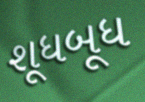
શૂધબૂધ